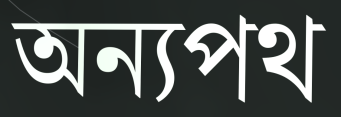
অন্যপথ